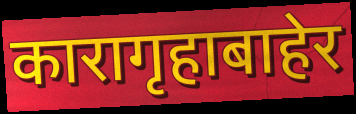
कारागृहाबाहेर